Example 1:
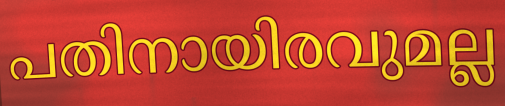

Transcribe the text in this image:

പതിനായിരവുമല്ല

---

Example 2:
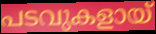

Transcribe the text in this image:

പടവുകളായ്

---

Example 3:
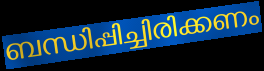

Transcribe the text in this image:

ബന്ധിപ്പിച്ചിരിക്കണം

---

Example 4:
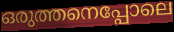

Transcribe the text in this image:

ഒരുത്തനെപ്പോലെ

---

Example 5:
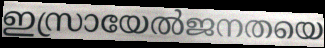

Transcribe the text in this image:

ഇസ്രായേൽജനതയെ